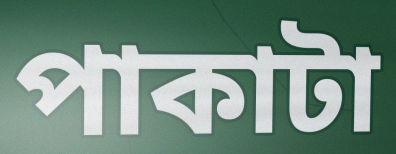
পাকাটা